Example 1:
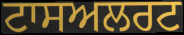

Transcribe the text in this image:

ਟਾਸਅਲਰਟ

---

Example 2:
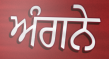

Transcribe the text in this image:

ਅੰਗਨੇ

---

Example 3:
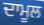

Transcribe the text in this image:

ਦਾਮੂਲ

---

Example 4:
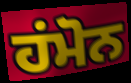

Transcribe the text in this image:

ਹਂਮੋਨ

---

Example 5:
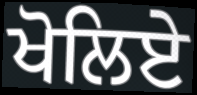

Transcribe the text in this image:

ਖੋਲਿਏ